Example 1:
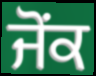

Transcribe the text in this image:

ਜੋਂਕ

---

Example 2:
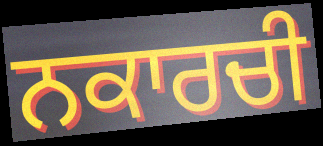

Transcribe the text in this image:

ਨਕਾਰਚੀ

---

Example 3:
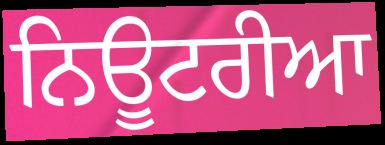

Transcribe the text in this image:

ਨਿਊਟਰੀਆ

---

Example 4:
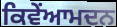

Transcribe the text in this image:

ਕਿਵੇਂਆਮਦਨ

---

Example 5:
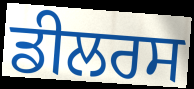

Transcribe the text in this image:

ਡੀਲਰਸ